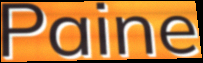
Paine